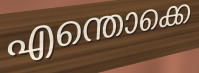
എന്തൊക്കെ